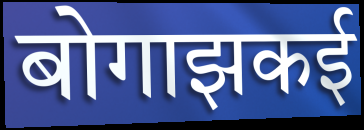
बोगाझकई